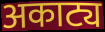
अकाट्य